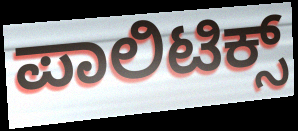
ಪಾಲಿಟಿಕ್ಸ್